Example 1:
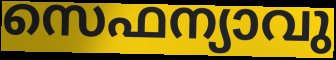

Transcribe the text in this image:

സെഫന്യാവു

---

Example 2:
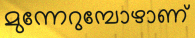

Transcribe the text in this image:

മുന്നേറുമ്പോഴാണ്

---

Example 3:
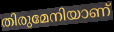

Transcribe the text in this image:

തിരുമേനിയാണ്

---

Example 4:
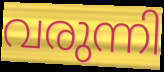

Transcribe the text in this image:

വരുന്നി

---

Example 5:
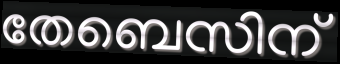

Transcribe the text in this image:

തേബെസിന്